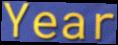
Year